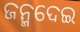
ଜନ୍ମଦେଇ